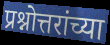
प्रश्नोत्तरांच्या